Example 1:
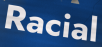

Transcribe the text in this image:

Racial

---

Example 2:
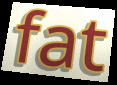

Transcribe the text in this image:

fat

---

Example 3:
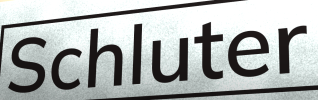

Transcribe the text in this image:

Schluter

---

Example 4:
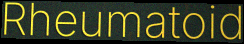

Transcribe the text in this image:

Rheumatoid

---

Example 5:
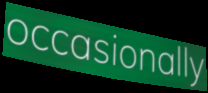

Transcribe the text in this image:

occasionally